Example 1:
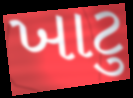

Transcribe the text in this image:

ખાટુ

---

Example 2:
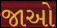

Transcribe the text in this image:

જાઓ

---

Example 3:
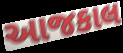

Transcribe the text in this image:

આજકાલ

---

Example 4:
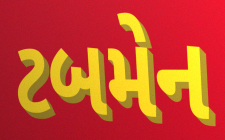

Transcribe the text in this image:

ટબમેન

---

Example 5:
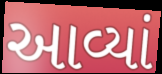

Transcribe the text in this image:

આવ્યાં